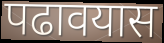
पढावयास